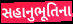
સહાનુભૂતિના